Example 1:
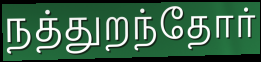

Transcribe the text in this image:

நத்துறந்தோர்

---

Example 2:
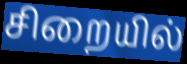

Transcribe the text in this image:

சிறையில்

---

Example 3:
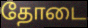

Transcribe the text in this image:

தோடை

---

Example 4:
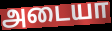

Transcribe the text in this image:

அடையா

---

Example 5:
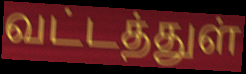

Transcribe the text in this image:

வட்டத்துள்